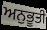
ਅਨੁਭੂਤੀ